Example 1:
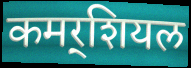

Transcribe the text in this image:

कमर्शियल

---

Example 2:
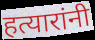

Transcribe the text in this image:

हत्यारांनी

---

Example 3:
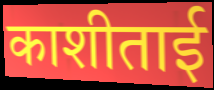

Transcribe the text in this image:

काशीताई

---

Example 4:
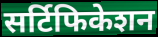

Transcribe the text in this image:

सर्टिफिकेशन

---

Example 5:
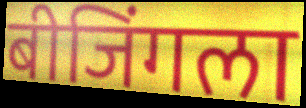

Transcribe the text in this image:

बीजिंगला